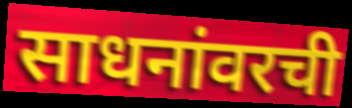
साधनांवरची